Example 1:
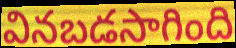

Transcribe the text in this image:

వినబడసాగింది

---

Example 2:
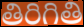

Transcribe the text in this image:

తిరిగితి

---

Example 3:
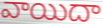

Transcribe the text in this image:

వాయిదా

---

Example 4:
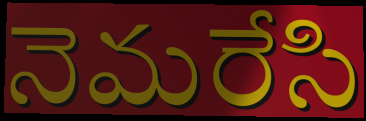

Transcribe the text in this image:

నెమరేసి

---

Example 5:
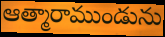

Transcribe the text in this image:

ఆత్మారాముండును